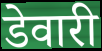
डेवारी